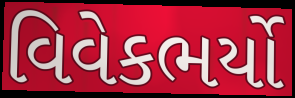
વિવેકભર્યો